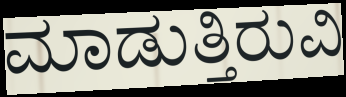
ಮಾಡುತ್ತಿರುವಿ